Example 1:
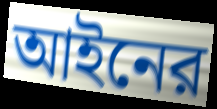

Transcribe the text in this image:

আইনের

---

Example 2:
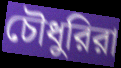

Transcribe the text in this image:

চৌধুরিরা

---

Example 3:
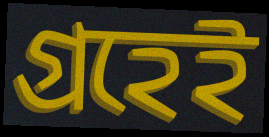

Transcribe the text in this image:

গ্রহেই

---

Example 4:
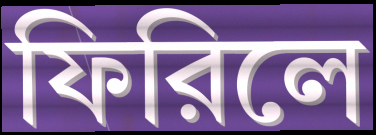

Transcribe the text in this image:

ফিরিলে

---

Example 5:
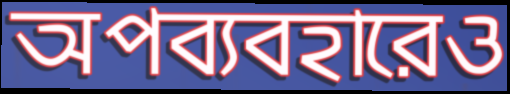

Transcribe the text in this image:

অপব্যবহারেও